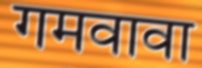
गमवावा